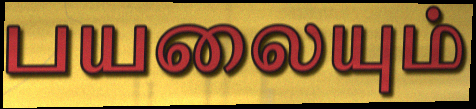
பயலையும்